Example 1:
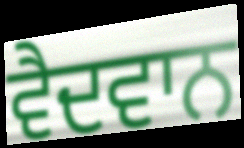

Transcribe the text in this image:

ਵੈਦਵਾਨ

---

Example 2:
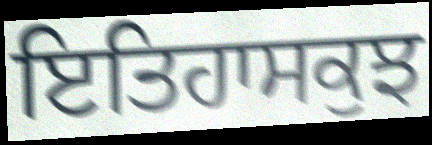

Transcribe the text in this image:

ਇਤਿਹਾਸਕੁਝ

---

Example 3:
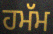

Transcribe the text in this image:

ਹਮੱਮ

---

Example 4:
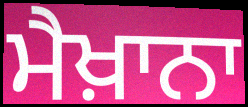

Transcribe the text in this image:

ਮੈਖ਼ਾਨਾ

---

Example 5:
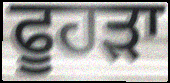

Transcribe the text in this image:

ਫੂਹੜਾ